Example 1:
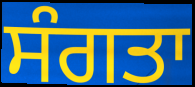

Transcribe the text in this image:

ਸੰਗਤਾ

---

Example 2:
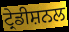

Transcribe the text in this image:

ਟ੍ਰੇਡੀਸ਼ਨਲ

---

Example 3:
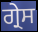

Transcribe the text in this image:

ਗ੍ਰੇਸ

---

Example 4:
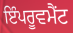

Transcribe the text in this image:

ਇੰਪਰੂਵਮੈਂਟ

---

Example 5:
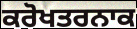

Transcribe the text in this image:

ਕਰੋਖਤਰਨਾਕ